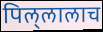
पिल्लालाच